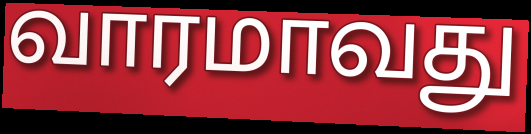
வாரமாவது